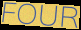
FOUR